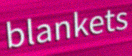
blankets